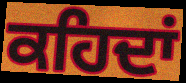
ਕਹਿਦਾਂ